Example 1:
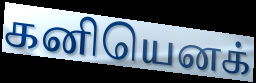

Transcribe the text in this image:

கனியெனக்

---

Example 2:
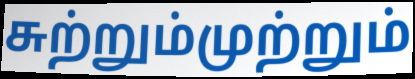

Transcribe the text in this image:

சுற்றும்முற்றும்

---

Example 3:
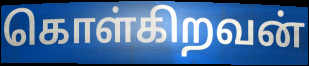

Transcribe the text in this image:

கொள்கிறவன்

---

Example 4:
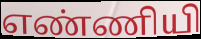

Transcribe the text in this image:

எண்ணியி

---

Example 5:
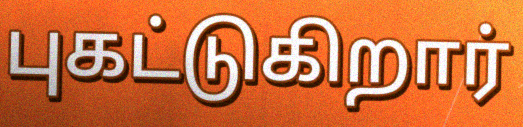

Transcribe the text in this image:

புகட்டுகிறார்